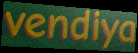
vendiya